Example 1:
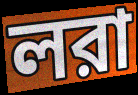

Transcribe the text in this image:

লরা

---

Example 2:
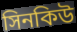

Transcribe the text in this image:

সিনকিউ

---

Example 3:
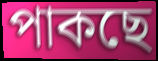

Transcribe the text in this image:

পাকছে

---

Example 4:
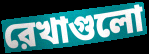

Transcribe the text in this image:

রেখাগুলো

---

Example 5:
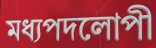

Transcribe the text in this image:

মধ্যপদলোপী